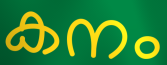
കനം